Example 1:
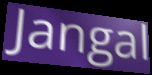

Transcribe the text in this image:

Jangal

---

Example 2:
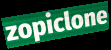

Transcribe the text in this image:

zopiclone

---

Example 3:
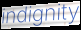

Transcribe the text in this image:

indignity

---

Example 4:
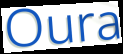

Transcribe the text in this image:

Oura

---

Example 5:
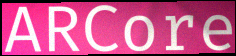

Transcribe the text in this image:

ARCore